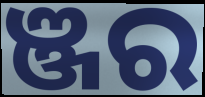
ଞ୍ଜର